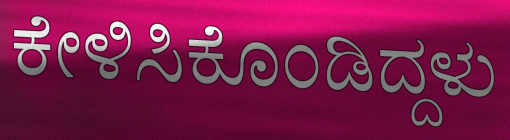
ಕೇಳಿಸಿಕೊಂಡಿದ್ದಳು